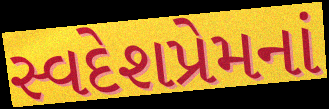
સ્વદેશપ્રેમનાં